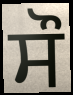
ਸੌ